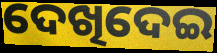
ଦେଖିଦେଇ